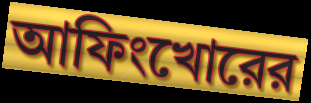
আফিংখোরের